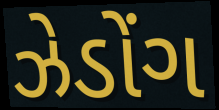
ઝેડોંગ